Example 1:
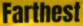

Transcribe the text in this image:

Farthest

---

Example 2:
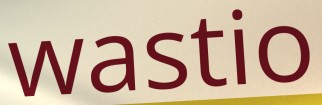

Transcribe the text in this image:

wastio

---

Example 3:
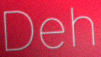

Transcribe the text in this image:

Deh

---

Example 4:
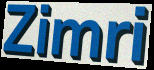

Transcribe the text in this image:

Zimri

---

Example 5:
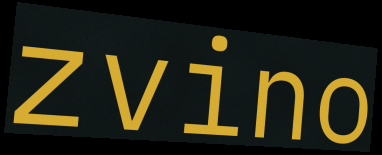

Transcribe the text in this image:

zvino